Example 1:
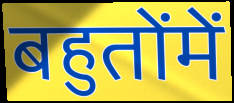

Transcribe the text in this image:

बहुतोंमें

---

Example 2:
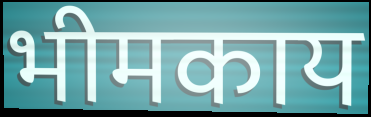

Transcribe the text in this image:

भीमकाय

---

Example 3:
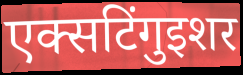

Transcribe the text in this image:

एक्सटिंगुइशर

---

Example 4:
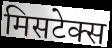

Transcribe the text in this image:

मिसटेक्स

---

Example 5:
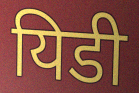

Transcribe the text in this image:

यिडी